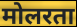
मोलरता